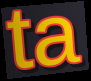
ta